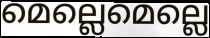
മെല്ലെമെല്ലെ